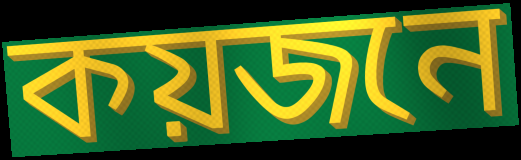
কয়জনে